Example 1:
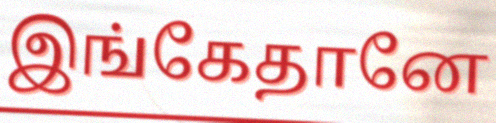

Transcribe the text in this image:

இங்கேதானே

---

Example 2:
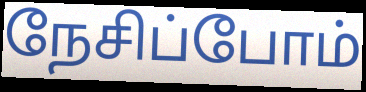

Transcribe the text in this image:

நேசிப்போம்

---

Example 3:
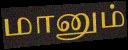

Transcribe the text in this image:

மானும்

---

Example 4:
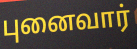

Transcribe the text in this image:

புனைவார்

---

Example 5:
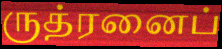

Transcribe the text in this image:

ருத்ரனைப்